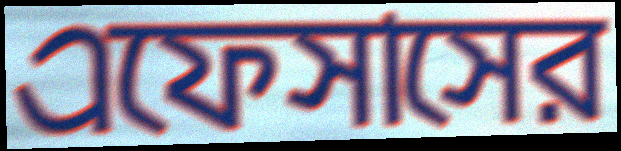
এফেসাসের